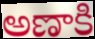
అణాకి